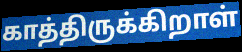
காத்திருக்கிறாள்